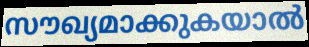
സൗഖ്യമാക്കുകയാൽ